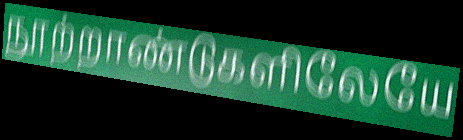
நூற்றாண்டுகளிலேயே